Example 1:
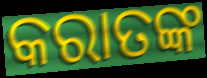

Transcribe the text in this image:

କରାତଙ୍କ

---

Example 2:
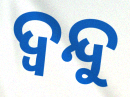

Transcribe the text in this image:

ଦ୍ଵନ୍ଦୁ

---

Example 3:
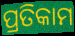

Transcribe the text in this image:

ପ୍ରତିକାମ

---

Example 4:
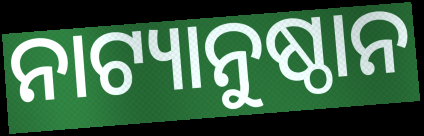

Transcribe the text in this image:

ନାଟ୍ୟାନୁଷ୍ଠାନ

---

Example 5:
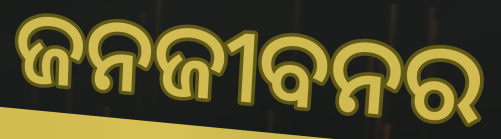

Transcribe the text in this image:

ଜନଜୀବନର